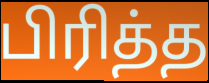
பிரித்த